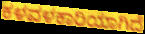
ಕಳವಳಕಾರಿಯಾಗಿದೆ